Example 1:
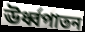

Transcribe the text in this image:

ঊর্ধ্বপাতন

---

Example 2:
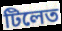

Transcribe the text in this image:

টিলেত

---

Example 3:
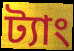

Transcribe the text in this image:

ট্যাং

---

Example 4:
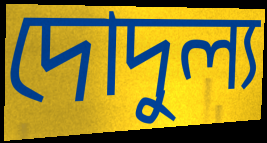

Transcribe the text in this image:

দোদুল্য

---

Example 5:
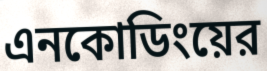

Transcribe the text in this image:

এনকোডিংয়ের